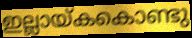
ഇല്ലായ്കകൊണ്ടു